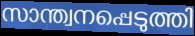
സാന്ത്വനപ്പെടുത്തി